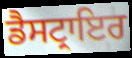
ਡੈਸਟ੍ਰਾਇਰ